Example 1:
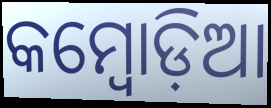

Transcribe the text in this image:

କମ୍ୱୋଡ଼ିଆ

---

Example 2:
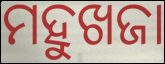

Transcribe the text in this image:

ମହୁଖଜା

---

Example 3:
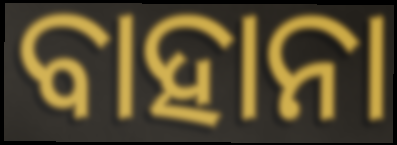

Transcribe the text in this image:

ବାହାନା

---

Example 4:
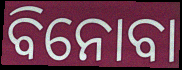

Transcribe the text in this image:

ବିନୋବା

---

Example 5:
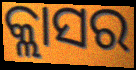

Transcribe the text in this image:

କ୍ଲାସର